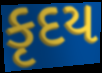
કૃદય